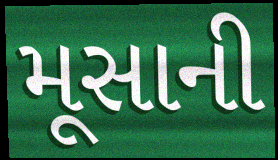
મૂસાની